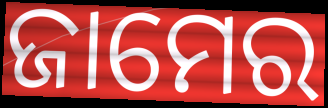
ଜାମେର